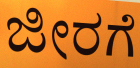
ಜೀರಗೆ